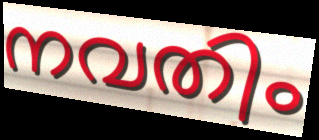
നവതിം